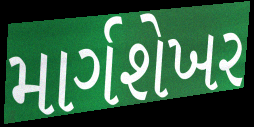
માર્ગશેખર